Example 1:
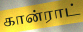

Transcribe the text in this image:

கான்ராட்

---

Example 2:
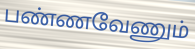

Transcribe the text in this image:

பண்ணவேணும்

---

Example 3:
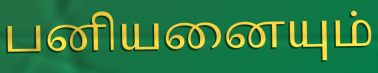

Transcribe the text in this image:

பனியனையும்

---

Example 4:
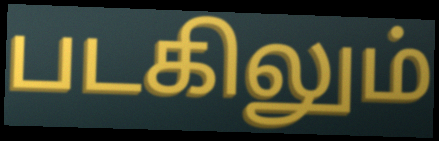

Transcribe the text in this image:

படகிலும்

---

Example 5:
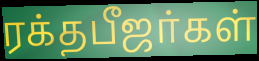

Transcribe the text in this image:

ரக்தபீஜர்கள்